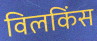
विलकिंस